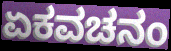
ಏಕವಚನಂ